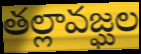
తల్లావజ్ఘల